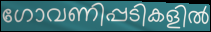
ഗോവണിപ്പടികളിൽ